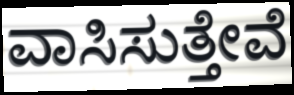
ವಾಸಿಸುತ್ತೇವೆ